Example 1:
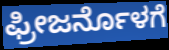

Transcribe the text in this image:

ಫ್ರೀಜರ್ನೊಳಗೆ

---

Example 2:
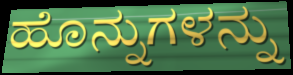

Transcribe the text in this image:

ಹೊನ್ನುಗಳನ್ನು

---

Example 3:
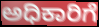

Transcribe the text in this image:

ಅಧಿಕಾರಿಗೆ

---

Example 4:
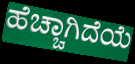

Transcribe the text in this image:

ಹೆಚ್ಚಾಗಿದೆಯೆ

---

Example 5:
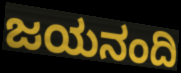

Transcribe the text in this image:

ಜಯನಂದಿ